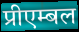
प्रीएम्बल